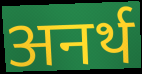
अनर्थ